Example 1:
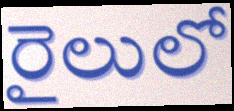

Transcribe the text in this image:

రైలులో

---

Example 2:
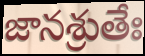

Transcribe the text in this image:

జానశ్రుతేః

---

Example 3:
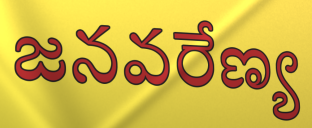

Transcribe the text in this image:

జనవరేణ్య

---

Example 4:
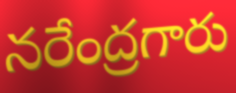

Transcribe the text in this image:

నరేంద్రగారు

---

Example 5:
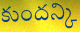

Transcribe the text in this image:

కుందన్కి